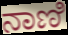
ನಾಣಿ